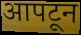
आपटून